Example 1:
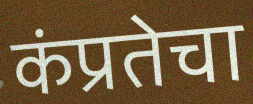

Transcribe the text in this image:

कंप्रतेचा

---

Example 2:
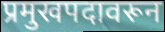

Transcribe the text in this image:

प्रमुखपदावरून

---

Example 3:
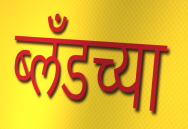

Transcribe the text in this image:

ब्लँडच्या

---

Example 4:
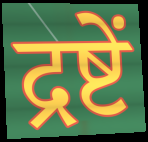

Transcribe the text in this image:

द्रष्टें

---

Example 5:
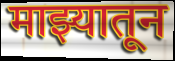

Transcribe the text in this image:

माझ्यातून